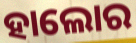
ହାଲୋର